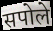
सपोले